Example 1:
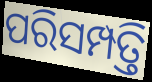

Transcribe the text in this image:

ପରିସମ୍ପତ୍ତି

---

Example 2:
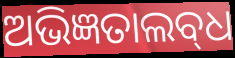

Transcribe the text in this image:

ଅଭିଜ୍ଞତାଲବ୍‌ଧ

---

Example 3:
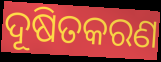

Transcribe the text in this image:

ଦୂଷିତକରଣ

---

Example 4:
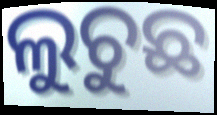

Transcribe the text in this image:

ଲୁଚୁଛ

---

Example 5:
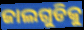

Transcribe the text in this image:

ଜାଲଗୁଡିକୁ